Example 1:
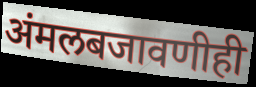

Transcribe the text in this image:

अंमलबजावणीही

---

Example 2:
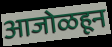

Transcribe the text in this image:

आजोळहून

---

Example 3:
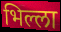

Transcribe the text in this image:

भिल्ला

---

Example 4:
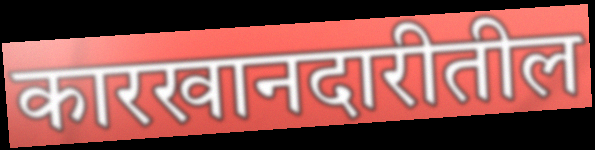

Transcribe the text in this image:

कारखानदारीतील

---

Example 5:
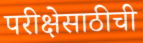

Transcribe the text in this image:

परीक्षेसाठीची